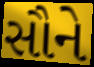
સૌને